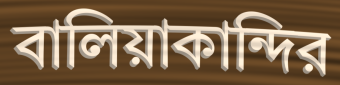
বালিয়াকান্দির